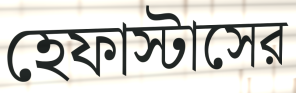
হেফাস্টাসের